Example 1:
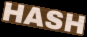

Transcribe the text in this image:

HASH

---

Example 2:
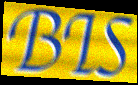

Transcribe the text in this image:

BIS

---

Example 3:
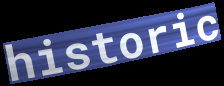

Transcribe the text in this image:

historic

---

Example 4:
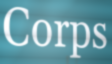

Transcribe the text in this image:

Corps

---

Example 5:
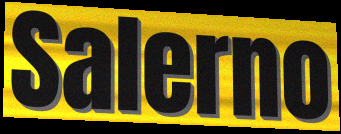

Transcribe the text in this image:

Salerno